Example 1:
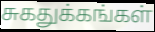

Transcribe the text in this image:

சுகதுக்கங்கள்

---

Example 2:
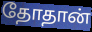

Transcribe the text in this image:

தோதான்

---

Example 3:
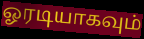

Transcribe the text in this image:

ஓரடியாகவும்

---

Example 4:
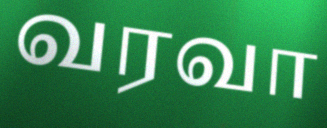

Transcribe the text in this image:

வரவா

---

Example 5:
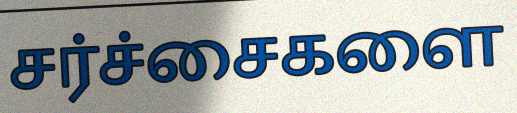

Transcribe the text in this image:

சர்ச்சைகளை